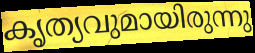
കൃത്യവുമായിരുന്നു